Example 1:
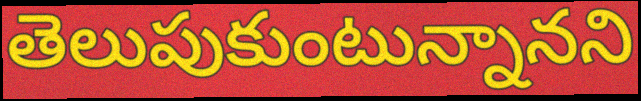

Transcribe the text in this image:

తెలుపుకుంటున్నానని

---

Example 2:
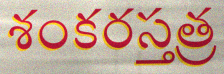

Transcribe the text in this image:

శంకరస్తత్ర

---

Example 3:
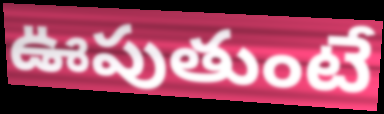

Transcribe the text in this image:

ఊపుతుంటే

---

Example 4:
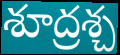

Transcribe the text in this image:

శూద్రశ్చ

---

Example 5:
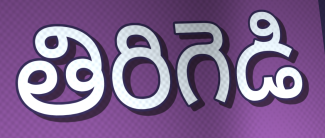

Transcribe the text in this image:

తిరిగెడి